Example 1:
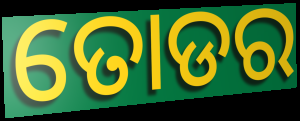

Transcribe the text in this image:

ତୋଡର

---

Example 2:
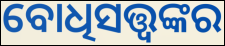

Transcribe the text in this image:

ବୋଧିସତ୍ତ୍ଵଙ୍କର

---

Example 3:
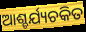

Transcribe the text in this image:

ଆଶ୍ଚର୍ଯ୍ୟଚକିତ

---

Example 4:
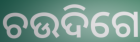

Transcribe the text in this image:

ଚଉଦିଗେ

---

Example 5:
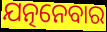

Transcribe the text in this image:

ଯତ୍ନନେବାର